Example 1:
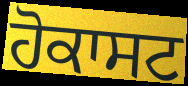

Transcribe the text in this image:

ਹੋਕਾਸਟ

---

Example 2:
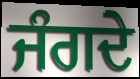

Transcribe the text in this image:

ਜੰਗਦੇ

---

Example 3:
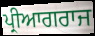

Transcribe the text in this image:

ਪ੍ਰੀਆਗਰਾਜ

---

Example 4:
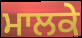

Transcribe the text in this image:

ਮਾਲਕੇ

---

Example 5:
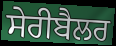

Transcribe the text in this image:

ਸੇਰੀਬੈਲਰ